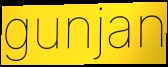
gunjan